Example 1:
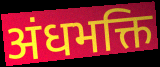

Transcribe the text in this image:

अंधभक्ति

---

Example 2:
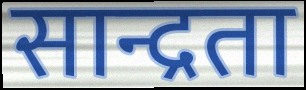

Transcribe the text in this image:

सान्द्रता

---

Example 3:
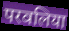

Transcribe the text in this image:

परवलिया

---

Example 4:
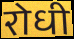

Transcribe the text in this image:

रोधी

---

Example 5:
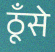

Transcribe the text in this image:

ठूँसे